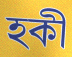
হকী